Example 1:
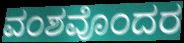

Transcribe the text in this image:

ವಂಶವೊಂದರ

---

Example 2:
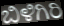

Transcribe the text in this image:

ಬಿಳಿಗಿರಿ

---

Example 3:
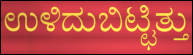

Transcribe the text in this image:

ಉಳಿದುಬಿಟ್ಟಿತ್ತು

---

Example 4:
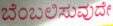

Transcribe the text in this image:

ಬೆಂಬಲಿಸುವುದೇ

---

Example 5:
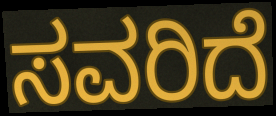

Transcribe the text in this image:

ಸವರಿದೆ